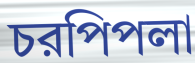
চরপিপলা